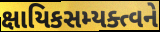
ક્ષાયિકસમ્યક્ત્વને